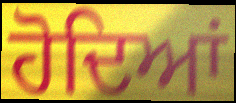
ਹੋਦਿਆਂ